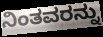
ನಿಂತವರನ್ನು